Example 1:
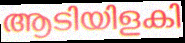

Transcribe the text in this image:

ആടിയിളകി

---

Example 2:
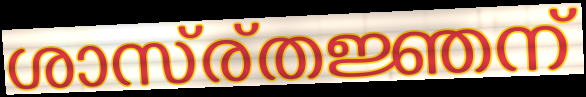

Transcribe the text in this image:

ശാസ്ര്തജ്ഞന്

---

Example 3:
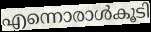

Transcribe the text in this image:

എന്നൊരാൾകൂടി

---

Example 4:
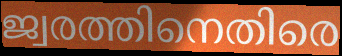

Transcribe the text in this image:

ജ്വരത്തിനെതിരെ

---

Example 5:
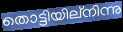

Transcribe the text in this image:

തൊട്ടിയില്നിന്നു